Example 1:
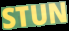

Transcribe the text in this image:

STUN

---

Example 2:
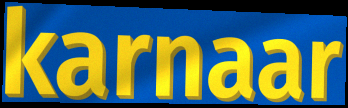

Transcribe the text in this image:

karnaar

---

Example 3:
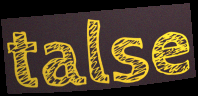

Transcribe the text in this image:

talse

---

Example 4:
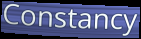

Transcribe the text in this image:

Constancy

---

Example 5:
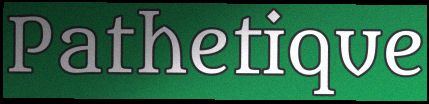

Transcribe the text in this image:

Pathetique